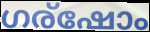
ഗര്ഷോം